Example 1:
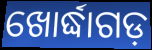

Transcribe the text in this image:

ଖୋର୍ଦ୍ଧାଗଡ଼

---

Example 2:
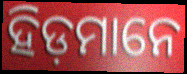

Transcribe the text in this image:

ହିଡ଼ମାନେ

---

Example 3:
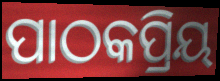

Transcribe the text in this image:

ପାଠକପ୍ରିୟ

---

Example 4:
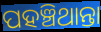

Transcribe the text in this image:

ପହଞ୍ଚିଥାନ୍ତା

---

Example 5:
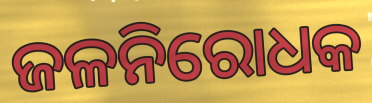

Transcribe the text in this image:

ଜଳନିରୋଧକ